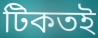
টিকতই